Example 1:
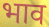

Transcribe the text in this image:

भाव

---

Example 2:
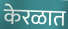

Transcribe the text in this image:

केरळात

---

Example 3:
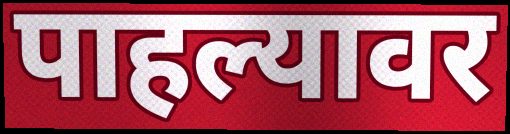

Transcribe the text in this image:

पाहल्यावर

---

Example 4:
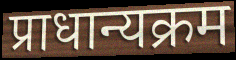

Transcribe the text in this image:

प्राधान्यक्रम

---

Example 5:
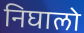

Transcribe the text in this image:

निघालो